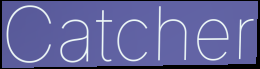
Catcher